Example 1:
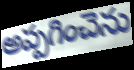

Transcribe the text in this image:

అప్పగించెను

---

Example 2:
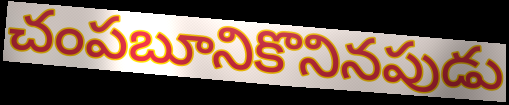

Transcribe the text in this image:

చంపబూనికొనినపుడు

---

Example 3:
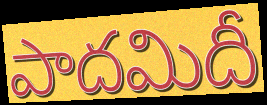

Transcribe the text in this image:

పాదమిదీ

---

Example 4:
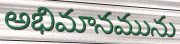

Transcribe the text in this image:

అభిమానమును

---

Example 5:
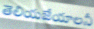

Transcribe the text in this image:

తెలియజేయాలనీ